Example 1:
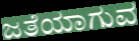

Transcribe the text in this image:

ಜತೆಯಾಗುವ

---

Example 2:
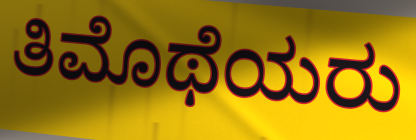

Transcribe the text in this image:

ತಿಮೊಥೆಯರು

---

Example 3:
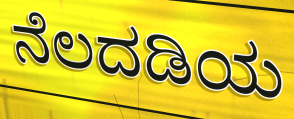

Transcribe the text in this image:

ನೆಲದಡಿಯ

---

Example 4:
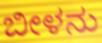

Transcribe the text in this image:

ಬೀಳನು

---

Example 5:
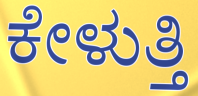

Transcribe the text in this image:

ಕೇಳುತ್ತಿ